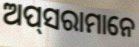
ଅପ୍‌ସରାମାନେ